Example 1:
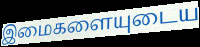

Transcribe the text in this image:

இமைகளையுடைய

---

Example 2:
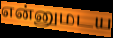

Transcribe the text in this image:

என்னுமடய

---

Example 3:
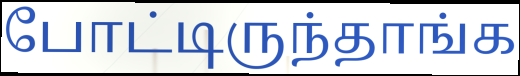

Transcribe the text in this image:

போட்டிருந்தாங்க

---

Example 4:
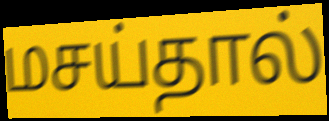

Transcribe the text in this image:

மசய்தால்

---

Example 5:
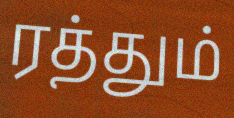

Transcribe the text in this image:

ரத்தும்